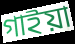
গাইয়া